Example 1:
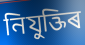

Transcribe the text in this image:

নিযুক্তিৰ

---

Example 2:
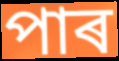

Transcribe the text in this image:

পাৰ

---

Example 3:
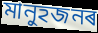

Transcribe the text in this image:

মানুহজনৰ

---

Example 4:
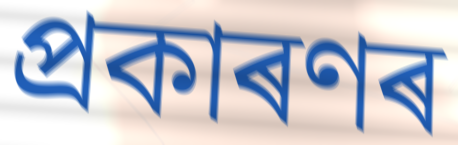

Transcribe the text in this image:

প্ৰকাৰণৰ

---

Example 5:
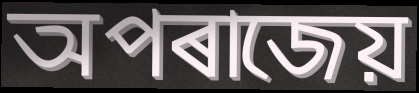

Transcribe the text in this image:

অপৰাজেয়